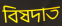
বিষদাত